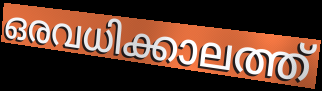
ഒരവധിക്കാലത്ത്